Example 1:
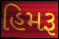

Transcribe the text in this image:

હિમરૂ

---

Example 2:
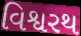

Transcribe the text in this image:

વિશ્વરથ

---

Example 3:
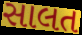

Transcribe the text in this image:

સાલત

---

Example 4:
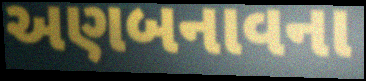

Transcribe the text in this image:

અણબનાવના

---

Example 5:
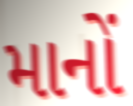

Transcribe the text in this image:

માનોં